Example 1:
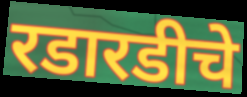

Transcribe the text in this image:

रडारडीचे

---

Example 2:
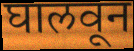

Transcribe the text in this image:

घालवून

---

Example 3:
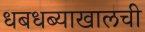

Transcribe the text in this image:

धबधब्याखालची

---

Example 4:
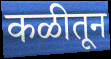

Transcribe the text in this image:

कळीतून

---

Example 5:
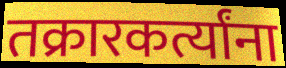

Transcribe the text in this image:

तक्रारकर्त्यांना